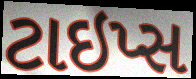
ટાઇપ્સ